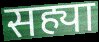
सह्या